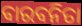
ବାରବନିତା